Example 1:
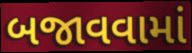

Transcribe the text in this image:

બજાવવામાં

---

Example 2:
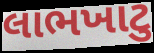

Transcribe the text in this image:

લાભખાટુ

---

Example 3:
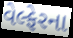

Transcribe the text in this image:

વેલ્ફેરના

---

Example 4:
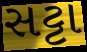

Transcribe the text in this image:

સટ્ટા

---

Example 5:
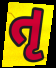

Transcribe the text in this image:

તૃ